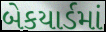
બેકયાર્ડમાં